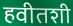
हवीतशी